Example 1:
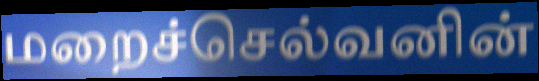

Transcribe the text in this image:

மறைச்செல்வனின்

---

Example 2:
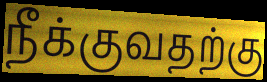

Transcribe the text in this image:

நீக்குவதற்கு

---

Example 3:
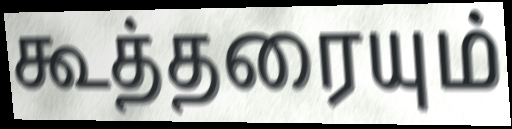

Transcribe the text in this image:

கூத்தரையும்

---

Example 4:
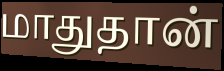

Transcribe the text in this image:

மாதுதான்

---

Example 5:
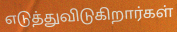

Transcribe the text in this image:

எடுத்துவிடுகிறார்கள்